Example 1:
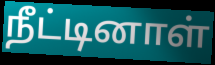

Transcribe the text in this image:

நீட்டினாள்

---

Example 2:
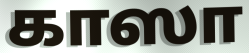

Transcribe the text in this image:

காஸா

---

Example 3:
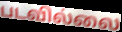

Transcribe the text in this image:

படவில்லை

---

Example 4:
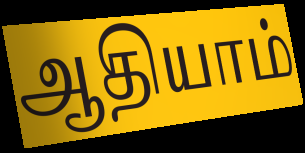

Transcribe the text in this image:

ஆதியாம்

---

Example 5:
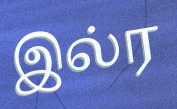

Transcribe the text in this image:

இல்ர